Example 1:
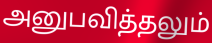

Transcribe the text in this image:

அனுபவித்தலும்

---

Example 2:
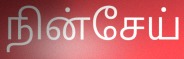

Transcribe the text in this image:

நின்சேய்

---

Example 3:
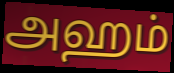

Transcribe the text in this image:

அஹம்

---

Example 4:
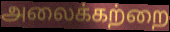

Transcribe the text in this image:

அலைக்கற்றை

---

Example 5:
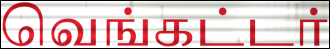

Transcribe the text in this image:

வெங்கட்டர்